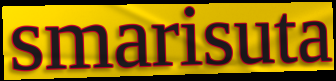
smarisuta